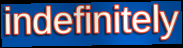
indefinitely